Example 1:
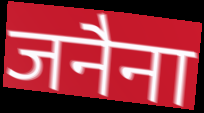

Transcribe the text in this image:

जनैना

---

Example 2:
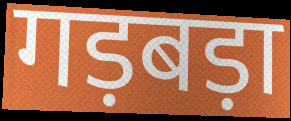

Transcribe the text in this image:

गड़बड़ा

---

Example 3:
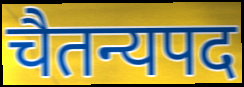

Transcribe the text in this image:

चैतन्यपद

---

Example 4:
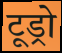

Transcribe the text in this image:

टूड्रो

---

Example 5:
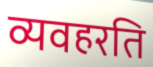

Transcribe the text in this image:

व्यवहरति